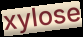
xylose